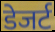
डेजर्ट